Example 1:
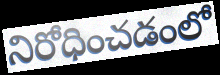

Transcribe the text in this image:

నిరోధించడంలో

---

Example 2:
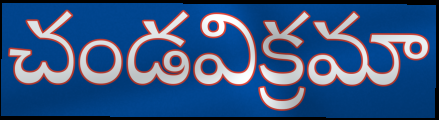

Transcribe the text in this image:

చండవిక్రమా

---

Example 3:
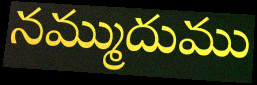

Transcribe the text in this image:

నమ్ముదుము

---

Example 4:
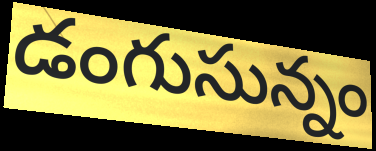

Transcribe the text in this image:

డంగుసున్నం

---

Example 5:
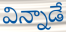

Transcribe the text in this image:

విన్నాడే